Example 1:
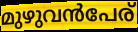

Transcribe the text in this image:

മുഴുവൻപേര്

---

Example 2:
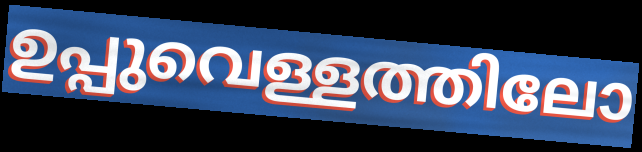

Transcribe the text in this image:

ഉപ്പുവെള്ളത്തിലോ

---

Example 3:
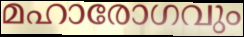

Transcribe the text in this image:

മഹാരോഗവും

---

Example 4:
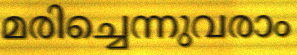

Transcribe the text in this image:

മരിച്ചെന്നുവരാം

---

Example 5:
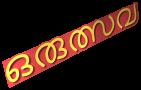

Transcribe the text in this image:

ഒരുത്സവ